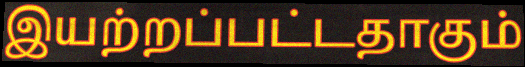
இயற்றப்பட்டதாகும்